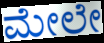
ಮೇಲೇ